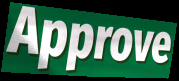
Approve